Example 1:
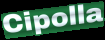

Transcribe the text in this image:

Cipolla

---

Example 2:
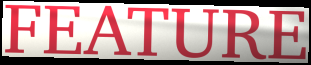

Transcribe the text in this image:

FEATURE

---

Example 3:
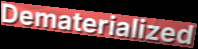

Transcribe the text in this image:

Dematerialized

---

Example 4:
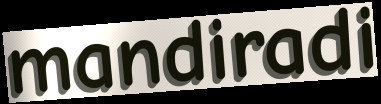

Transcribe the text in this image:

mandiradi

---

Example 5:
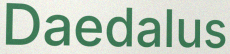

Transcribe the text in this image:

Daedalus